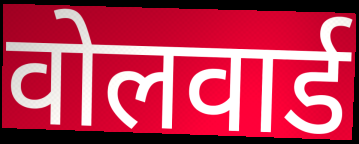
वोलवार्ड